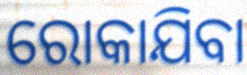
ରୋକାଯିବା